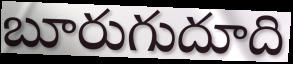
బూరుగుదూది